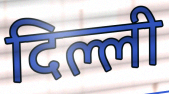
दिल्ली